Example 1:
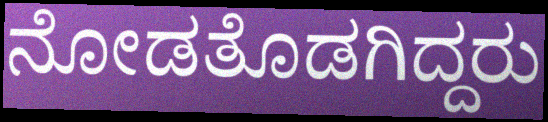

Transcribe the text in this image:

ನೋಡತೊಡಗಿದ್ದರು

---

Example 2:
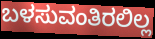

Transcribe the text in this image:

ಬಳಸುವಂತಿರಲಿಲ್ಲ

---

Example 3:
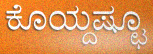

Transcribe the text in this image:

ಕೊಯ್ದಷ್ಟೂ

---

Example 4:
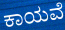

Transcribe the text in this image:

ಕಾಯವೆ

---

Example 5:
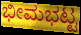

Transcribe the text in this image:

ಭೀಮಭಟ್ಟ